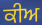
ਕੀਅ